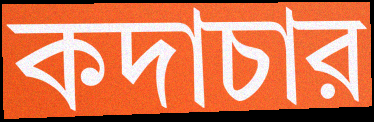
কদাচার